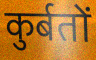
कुर्बतों